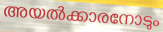
അയൽക്കാരനോടും